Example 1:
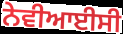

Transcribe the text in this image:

ਨੇਵੀਆਈਸੀ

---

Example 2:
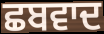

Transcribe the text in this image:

ਛਬਵਾਦ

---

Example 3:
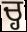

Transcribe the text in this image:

ਚ੍ਹ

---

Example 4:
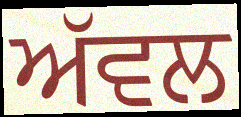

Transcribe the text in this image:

ਅੱਵਲ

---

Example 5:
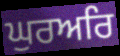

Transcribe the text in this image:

ਘੁਰਅਰਿ